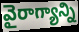
వైరాగ్యాన్ని